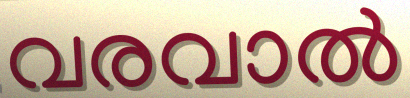
വരവാൽ